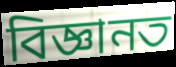
বিজ্ঞানত